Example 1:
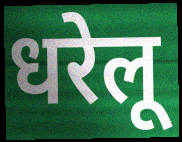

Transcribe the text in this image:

धरेलू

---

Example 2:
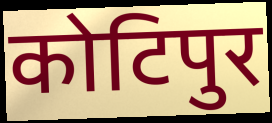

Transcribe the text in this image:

कोटिपुर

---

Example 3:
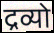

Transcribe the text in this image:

द्रव्यो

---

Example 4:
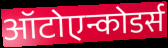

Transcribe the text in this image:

ऑटोएन्कोडर्स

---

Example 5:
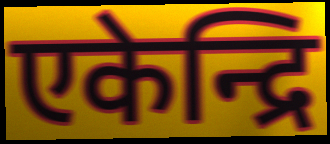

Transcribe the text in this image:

एकेन्द्रि